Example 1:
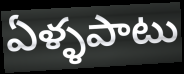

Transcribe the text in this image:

ఏళ్ళపాటు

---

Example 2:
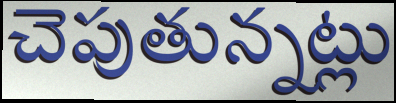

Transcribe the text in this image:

చెపుతున్నట్లు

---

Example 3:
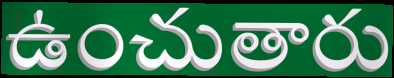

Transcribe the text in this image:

ఉంచుతారు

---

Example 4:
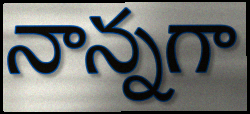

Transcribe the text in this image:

నాన్నగా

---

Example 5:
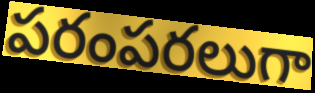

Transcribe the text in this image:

పరంపరలుగా